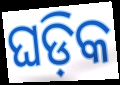
ଘଡ଼ିକ